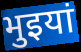
भुइयां